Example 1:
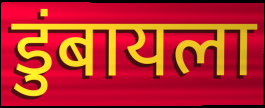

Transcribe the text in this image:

डुंबायला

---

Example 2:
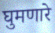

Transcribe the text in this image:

घुमणारे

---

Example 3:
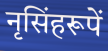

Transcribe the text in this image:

नृसिंहरूपें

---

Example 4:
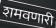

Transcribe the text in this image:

शमवणारी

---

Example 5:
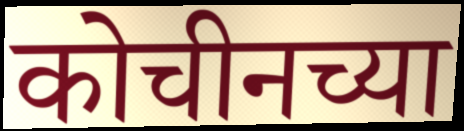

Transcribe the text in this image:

कोचीनच्या